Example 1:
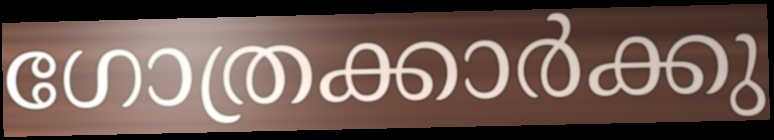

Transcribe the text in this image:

ഗോത്രക്കാർക്കു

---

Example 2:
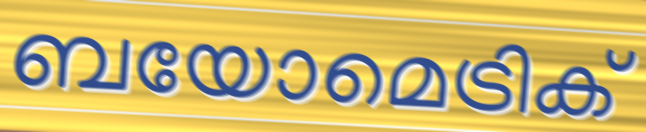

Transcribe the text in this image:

ബയോമെട്രിക്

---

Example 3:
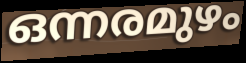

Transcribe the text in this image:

ഒന്നരമുഴം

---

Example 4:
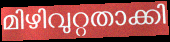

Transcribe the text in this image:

മിഴിവുറ്റതാക്കി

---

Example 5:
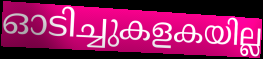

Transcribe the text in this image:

ഓടിച്ചുകളകയില്ല